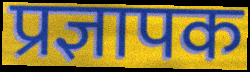
प्रज्ञापक